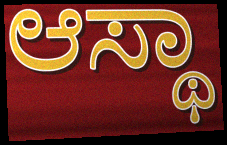
ಆಸ್ಥಾ